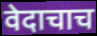
वेदाचाच